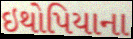
ઇથોપિયાના